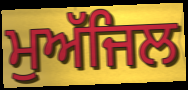
ਮੁਅੱਜਿਲ